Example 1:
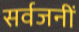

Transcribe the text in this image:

सर्वजनीं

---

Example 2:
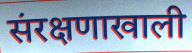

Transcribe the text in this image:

संरक्षणाखाली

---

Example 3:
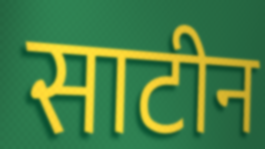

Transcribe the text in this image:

साटीन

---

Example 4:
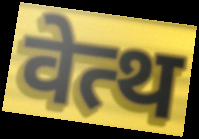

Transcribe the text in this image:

वेत्थ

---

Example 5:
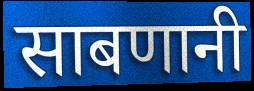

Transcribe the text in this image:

साबणानी